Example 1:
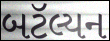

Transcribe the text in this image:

બટૅલ્યન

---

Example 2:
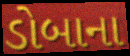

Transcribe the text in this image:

ડોબાના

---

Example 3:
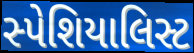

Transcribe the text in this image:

સ્પેશિયાલિસ્ટ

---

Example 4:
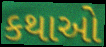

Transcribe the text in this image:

કથાઓ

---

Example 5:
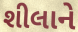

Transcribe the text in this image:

શીલાને